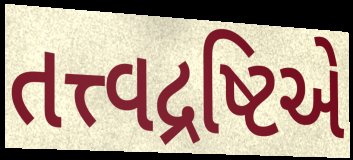
તત્ત્વદ્રષ્ટિએ